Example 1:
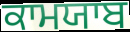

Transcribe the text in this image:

ਕਾਮਯਾਬ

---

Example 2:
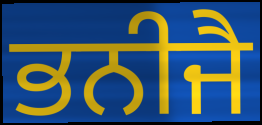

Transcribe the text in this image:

ਭਨੀਜੈ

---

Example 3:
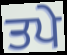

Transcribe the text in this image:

ਤਪੇ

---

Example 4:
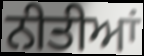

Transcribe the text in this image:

ਨੀਤੀਆਂ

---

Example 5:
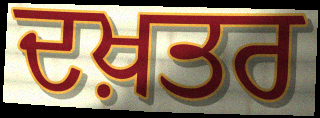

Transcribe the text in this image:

ਦਖ਼ਤਰ